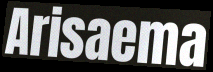
Arisaema